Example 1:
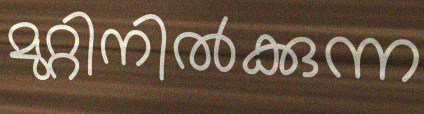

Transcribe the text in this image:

മുറ്റിനിൽക്കുന്ന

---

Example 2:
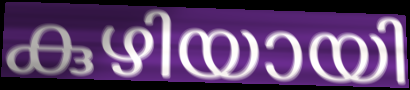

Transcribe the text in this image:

കുഴിയായി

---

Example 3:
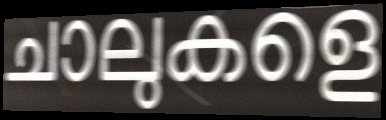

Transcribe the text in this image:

ചാലുകളെ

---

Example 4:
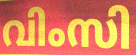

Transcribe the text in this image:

വിംസി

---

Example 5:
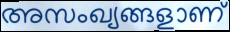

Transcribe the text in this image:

അസംഖ്യങ്ങളാണ്